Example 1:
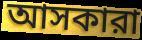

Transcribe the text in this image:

আসকারা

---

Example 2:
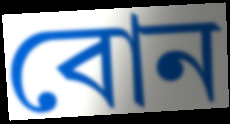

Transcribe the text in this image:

বোন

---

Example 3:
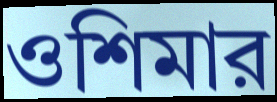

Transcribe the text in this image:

ওশিমার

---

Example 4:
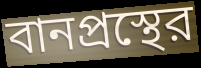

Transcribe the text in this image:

বানপ্রস্থের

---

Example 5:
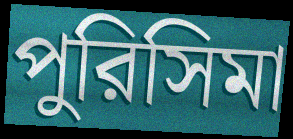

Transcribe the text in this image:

পুরিসিমা